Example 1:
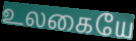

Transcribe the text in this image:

உலகையே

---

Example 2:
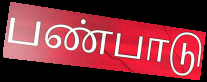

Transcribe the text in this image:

பண்பாடு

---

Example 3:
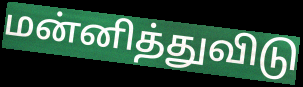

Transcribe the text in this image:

மன்னித்துவிடு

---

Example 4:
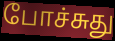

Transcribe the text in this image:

போச்சுது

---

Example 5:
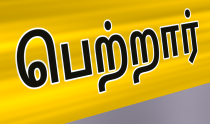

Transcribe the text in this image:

பெற்றார்